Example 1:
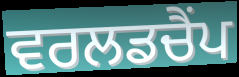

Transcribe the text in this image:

ਵਰਲਡਚੈਂਪ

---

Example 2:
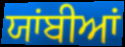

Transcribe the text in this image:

ਯਾਂਬੀਆਂ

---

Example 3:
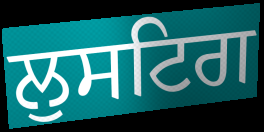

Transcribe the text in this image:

ਲੁਸਟਿਗ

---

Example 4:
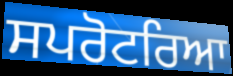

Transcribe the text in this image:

ਸਪਰੋਟਰਿਆ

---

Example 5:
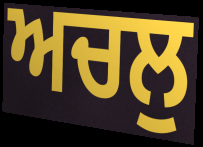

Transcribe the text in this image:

ਅਚਲੁ